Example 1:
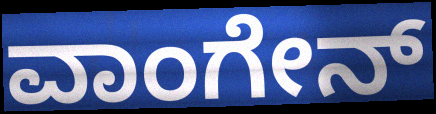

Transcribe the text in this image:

ವಾಂಗೇನ್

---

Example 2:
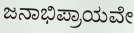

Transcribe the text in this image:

ಜನಾಭಿಪ್ರಾಯವೇ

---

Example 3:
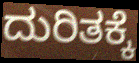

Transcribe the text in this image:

ದುರಿತಕ್ಕೆ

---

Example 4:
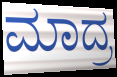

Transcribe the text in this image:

ಮಾದ್ರ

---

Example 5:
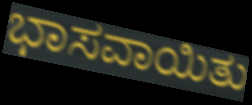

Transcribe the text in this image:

ಭಾಸವಾಯಿತು